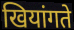
खियांगते